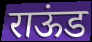
राऊंड